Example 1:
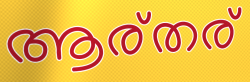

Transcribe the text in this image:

ആര്തര്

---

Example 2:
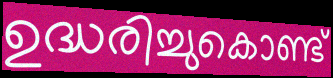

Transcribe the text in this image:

ഉദ്ധരിച്ചുകൊണ്ട്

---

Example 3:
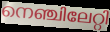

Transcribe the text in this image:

നെഞ്ചിലേറ്റി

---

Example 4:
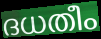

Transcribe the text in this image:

ദധതീം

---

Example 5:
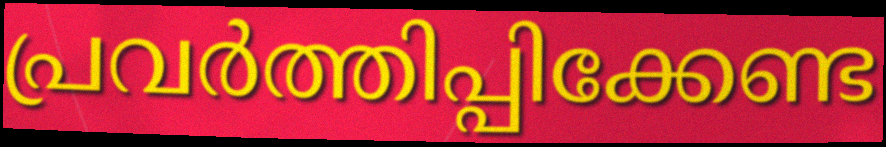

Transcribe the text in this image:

പ്രവർത്തിപ്പിക്കേണ്ട